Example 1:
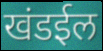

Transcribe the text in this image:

खंडईल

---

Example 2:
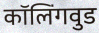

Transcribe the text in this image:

कॉलिंगवुड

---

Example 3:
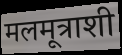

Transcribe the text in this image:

मलमूत्राशी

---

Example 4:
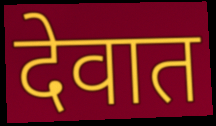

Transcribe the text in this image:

देवात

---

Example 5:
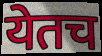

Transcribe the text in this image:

येतच